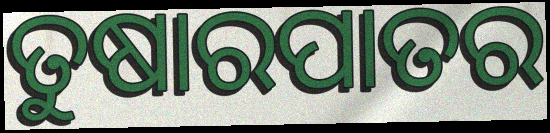
ତୁଷାରପାତର